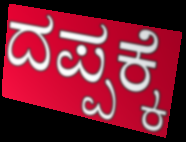
ದಪ್ಪಕ್ಕೆ